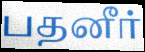
பதனீர்